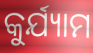
କୁର୍ଯ୍ୟାମ